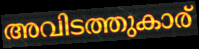
അവിടത്തുകാര്